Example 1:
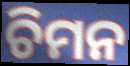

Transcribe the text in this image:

ଚିମନ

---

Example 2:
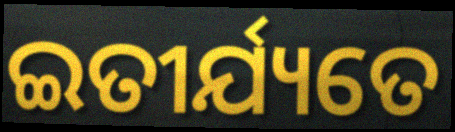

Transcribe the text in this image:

ଇତୀର୍ଯ୍ୟତେ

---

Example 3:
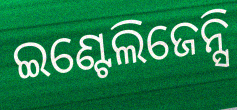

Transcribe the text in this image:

ଇଣ୍ଟେଲିଜେନ୍ସି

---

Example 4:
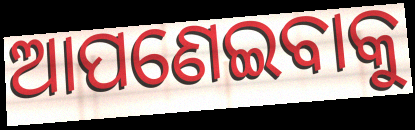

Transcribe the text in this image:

ଆପଣେଇବାକୁ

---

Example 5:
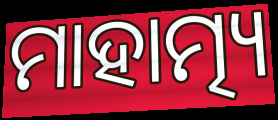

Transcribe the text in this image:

ମାହାତ୍ମ୍ୟ